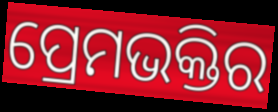
ପ୍ରେମଭକ୍ତିର